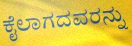
ಕೈಲಾಗದವರನ್ನು